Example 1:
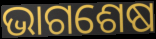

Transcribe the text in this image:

ଭାଗଶେଷ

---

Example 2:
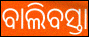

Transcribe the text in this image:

ବାଲିବସ୍ତା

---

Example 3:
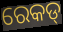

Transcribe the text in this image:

ରେକଡ୍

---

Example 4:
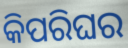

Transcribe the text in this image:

କିପରିଘର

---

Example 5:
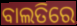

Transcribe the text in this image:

ବାଲତିରେ